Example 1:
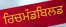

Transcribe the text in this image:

ਰਿਚਮੰਡਬਿਲਡ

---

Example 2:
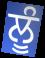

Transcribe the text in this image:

ਲੂੰ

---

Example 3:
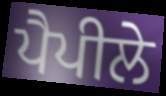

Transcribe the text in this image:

ਪੈਪੀਲੇ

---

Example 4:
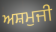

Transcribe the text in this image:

ਅਸ਼ਮੁਜੀ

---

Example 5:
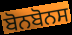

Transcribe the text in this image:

ਬੋਨਬੋਨਸ